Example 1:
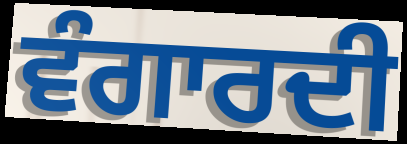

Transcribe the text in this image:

ਵੰਗਾਰਦੀ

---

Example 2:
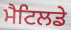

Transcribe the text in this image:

ਮੈਟਿਲਡੇ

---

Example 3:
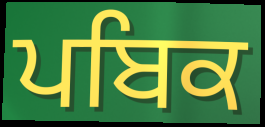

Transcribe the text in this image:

ਪਬਿਕ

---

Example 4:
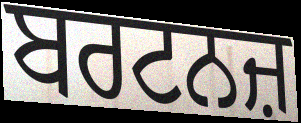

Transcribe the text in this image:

ਬਰਟਨਜ਼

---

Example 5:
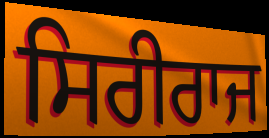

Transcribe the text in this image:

ਸਿਰੀਰਾਜ